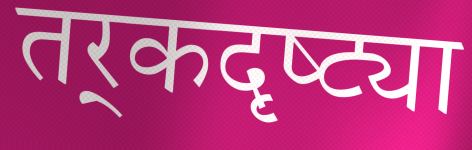
तर्कदृष्ट्या